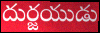
దుర్జయుడు